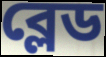
ব্লেড